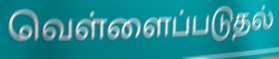
வெள்ளைப்படுதல்